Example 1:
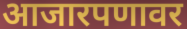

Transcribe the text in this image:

आजारपणावर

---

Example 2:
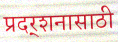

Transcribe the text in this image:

प्रदर्शनासाठी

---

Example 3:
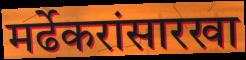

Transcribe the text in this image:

मर्ढेकरांसारखा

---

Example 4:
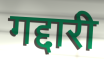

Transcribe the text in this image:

गद्दारी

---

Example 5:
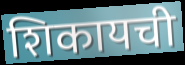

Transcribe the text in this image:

शिकायची